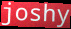
joshy